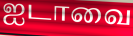
ஐடாவை